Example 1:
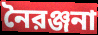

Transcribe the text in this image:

নৈরঞ্জনা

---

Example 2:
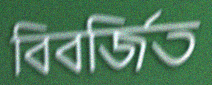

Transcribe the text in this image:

বিবর্জিত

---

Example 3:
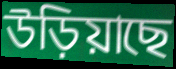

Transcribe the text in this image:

উড়িয়াছে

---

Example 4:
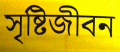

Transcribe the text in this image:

সৃষ্টিজীবন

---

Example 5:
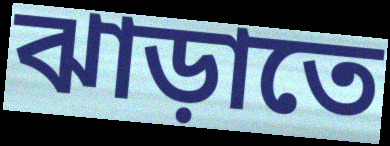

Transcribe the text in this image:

ঝাড়াতে